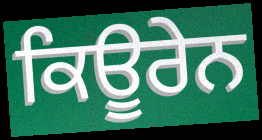
ਕਿਊਰੇਨ